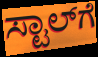
ಸ್ಟಾಲ್‌ಗೆ